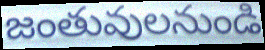
జంతువులనుండి